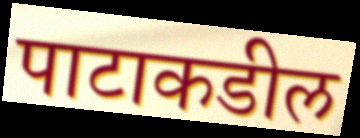
पाटाकडील